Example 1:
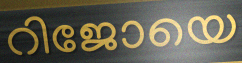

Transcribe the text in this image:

റിജോയെ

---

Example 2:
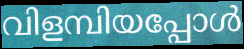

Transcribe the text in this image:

വിളമ്പിയപ്പോൾ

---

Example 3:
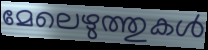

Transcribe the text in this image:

മേലെഴുത്തുകൾ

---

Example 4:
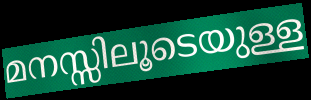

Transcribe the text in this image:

മനസ്സിലൂടെയുള്ള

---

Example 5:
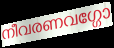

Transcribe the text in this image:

നീവരണവഗ്ഗോ